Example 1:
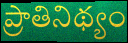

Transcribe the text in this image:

ప్రాతినిథ్యం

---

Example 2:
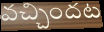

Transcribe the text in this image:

వచ్చిందట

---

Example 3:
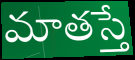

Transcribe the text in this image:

మాతస్తే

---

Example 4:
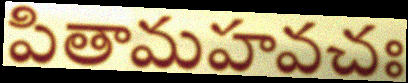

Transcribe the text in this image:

పితామహవచః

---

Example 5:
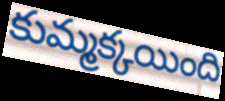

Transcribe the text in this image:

కుమ్మక్కయింది